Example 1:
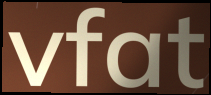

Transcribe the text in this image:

vfat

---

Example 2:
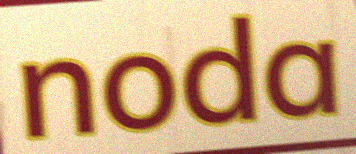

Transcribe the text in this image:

noda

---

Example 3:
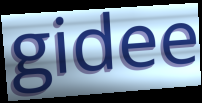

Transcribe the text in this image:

gidee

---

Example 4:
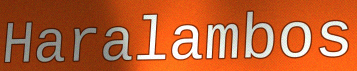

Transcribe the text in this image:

Haralambos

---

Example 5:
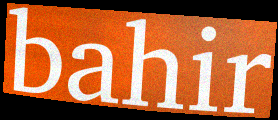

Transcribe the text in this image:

bahir